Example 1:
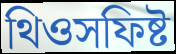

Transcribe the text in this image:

থিওসফিষ্ট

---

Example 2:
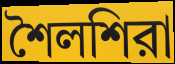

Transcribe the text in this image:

শৈলশিরা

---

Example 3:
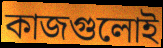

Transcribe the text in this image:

কাজগুলোই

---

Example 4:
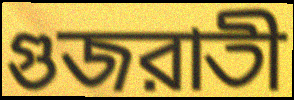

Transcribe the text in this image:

গুজরাতী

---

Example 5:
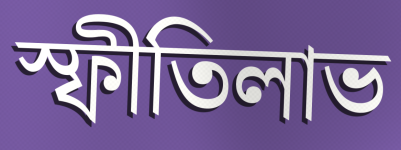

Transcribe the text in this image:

স্ফীতিলাভ